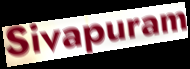
Sivapuram